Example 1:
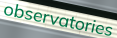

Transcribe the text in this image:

observatories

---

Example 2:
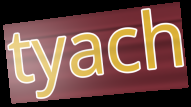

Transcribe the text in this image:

tyach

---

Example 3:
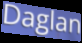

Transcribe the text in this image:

Daglan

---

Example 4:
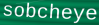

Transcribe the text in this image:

sobcheye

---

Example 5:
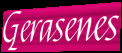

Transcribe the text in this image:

Gerasenes